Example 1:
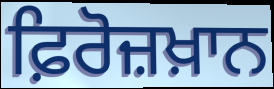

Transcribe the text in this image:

ਫ਼ਿਰੋਜ਼ਖ਼ਾਨ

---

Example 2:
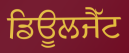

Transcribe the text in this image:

ਡਿਊਲਜੈੱਟ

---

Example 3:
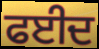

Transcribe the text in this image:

ਫਈਦ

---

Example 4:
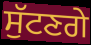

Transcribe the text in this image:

ਸੁੱਟਣਗੇ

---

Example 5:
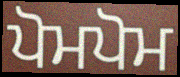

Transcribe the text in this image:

ਪੋਮਪੋਮ